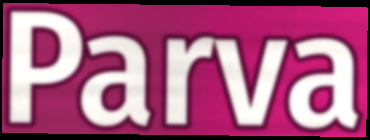
Parva